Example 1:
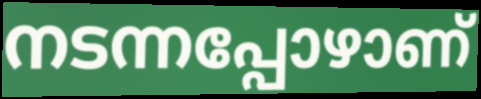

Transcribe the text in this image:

നടന്നപ്പോഴാണ്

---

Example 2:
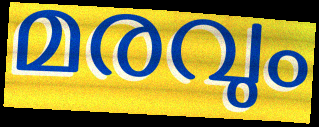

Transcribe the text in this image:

മരവും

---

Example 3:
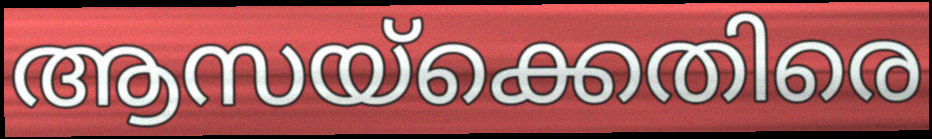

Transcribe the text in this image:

ആസയ്ക്കെതിരെ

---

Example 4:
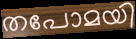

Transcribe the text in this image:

തപോമയി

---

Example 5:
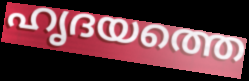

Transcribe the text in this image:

ഹൃദയത്തെ